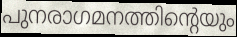
പുനരാഗമനത്തിന്റെയും